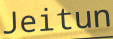
Jeitun